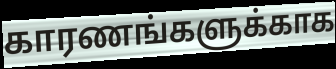
காரணங்களுக்காக